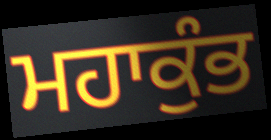
ਮਹਾਕੁੰਭ